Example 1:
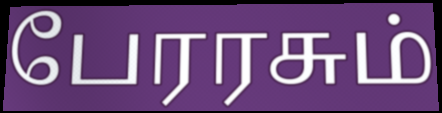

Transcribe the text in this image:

பேரரசும்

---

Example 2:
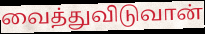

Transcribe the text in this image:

வைத்துவிடுவான்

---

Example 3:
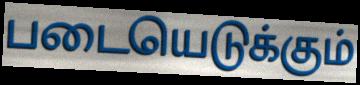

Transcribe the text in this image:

படையெடுக்கும்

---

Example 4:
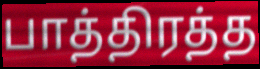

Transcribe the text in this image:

பாத்திரத்த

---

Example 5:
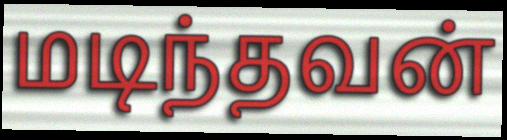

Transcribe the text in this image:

மடிந்தவன்